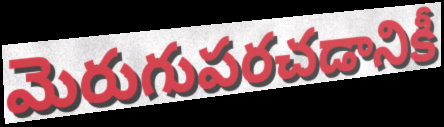
మెరుగుపరచడానికీ